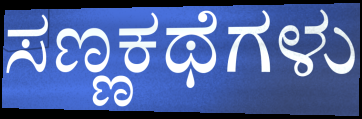
ಸಣ್ಣಕಥೆಗಳು